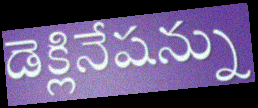
డెక్లినేషన్ను